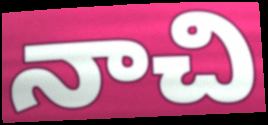
నాచి